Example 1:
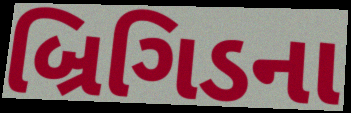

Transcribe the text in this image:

બ્રિગિડના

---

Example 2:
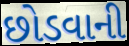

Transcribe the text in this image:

છોડવાની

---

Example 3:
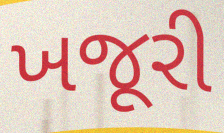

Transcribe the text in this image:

ખજૂરી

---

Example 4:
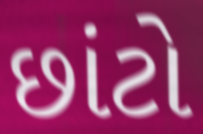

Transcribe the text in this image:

છાંટો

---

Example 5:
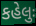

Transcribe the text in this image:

કહેલુઃ